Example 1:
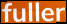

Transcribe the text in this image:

fuller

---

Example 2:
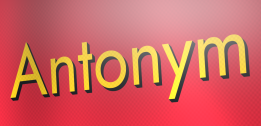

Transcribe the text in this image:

Antonym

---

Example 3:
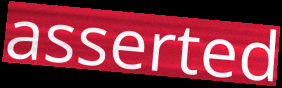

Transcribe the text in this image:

asserted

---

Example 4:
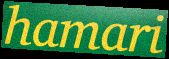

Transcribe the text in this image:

hamari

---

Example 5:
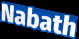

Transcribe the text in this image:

Nabath